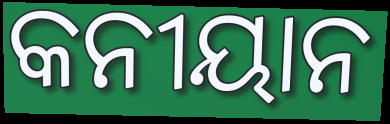
କନୀୟାନ